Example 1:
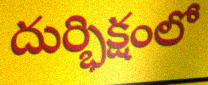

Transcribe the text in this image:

దుర్భిక్షంలో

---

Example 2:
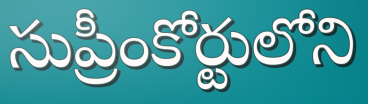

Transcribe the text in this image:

సుప్రీంకోర్టులోని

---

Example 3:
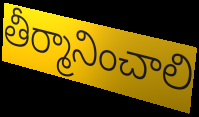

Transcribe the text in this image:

తీర్మానించాలి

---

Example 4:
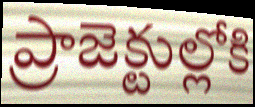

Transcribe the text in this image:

ప్రాజెక్టుల్లోకి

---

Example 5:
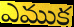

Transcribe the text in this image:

ఎముక